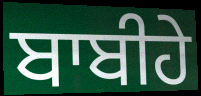
ਬਾਬੀਹੇ